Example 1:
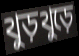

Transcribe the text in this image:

থুড়থুড়ে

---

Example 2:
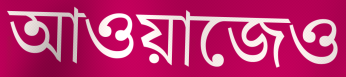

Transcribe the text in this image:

আওয়াজেও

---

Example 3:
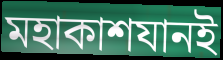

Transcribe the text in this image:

মহাকাশযানই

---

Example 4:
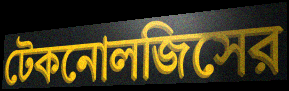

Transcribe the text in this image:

টেকনোলজিসের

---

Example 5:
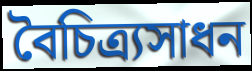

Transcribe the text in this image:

বৈচিত্র্যসাধন